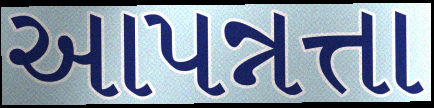
આપન્નત્તા